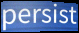
persist